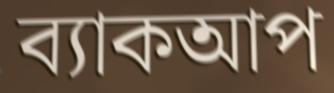
ব্যাকআপ